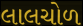
લાલચોળ